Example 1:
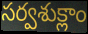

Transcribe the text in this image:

సర్వశుక్లాం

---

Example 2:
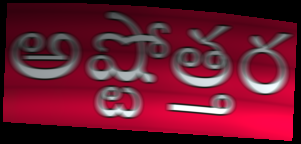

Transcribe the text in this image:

అష్టోత్తర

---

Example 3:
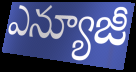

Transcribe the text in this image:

ఎన్యూజీ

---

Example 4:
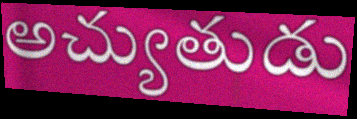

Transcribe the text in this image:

అచ్యుతుడు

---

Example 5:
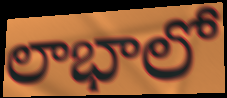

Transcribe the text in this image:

లాభాలో